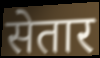
सेतार